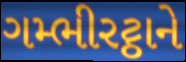
ગમ્ભીરટ્ઠાને